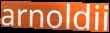
arnoldii